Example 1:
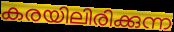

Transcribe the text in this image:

കരയിലിരിക്കുന്ന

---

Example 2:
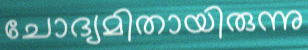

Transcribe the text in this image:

ചോദ്യമിതായിരുന്നു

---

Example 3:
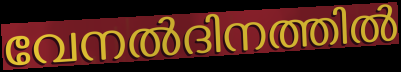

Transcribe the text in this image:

വേനൽദിനത്തിൽ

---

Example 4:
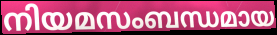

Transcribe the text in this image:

നിയമസംബന്ധമായ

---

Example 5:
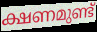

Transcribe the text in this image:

ക്ഷണമുണ്ട്